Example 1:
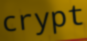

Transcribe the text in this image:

crypt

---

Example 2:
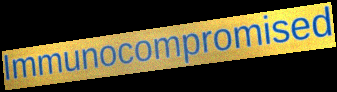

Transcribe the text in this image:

Immunocompromised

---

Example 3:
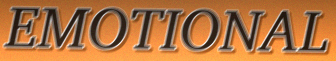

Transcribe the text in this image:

EMOTIONAL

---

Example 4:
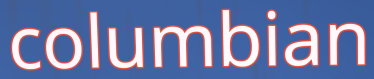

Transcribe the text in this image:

columbian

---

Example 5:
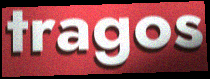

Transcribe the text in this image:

tragos